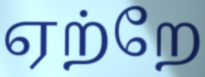
ஏற்றே